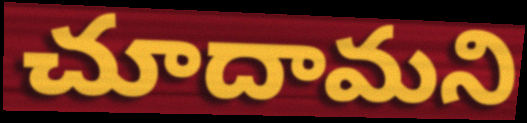
చూదామని